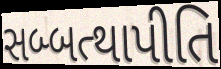
સબ્બત્થાપીતિ